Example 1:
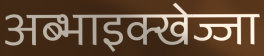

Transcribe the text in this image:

अब्भाइक्खेज्जा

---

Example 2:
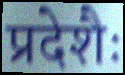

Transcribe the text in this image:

प्रदेशैः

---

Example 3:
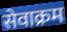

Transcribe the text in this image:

सेवाक्रम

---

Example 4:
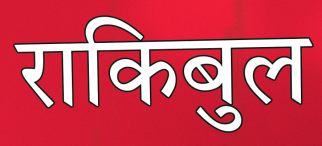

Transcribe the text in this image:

राकिबुल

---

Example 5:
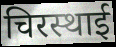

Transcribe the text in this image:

चिरस्थाई